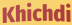
Khichdi